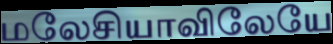
மலேசியாவிலேயே